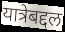
यात्रेबद्दल